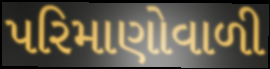
પરિમાણોવાળી